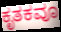
ಕೃತಕವೂ